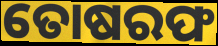
ତୋଷରଫ